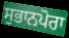
ਸੁਭਾਨਪੋਰਾ